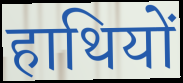
हाथियों